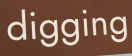
digging